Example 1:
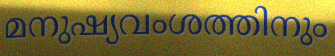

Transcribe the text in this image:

മനുഷ്യവംശത്തിനും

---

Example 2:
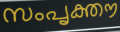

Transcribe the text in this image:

സംപൃക്തൗ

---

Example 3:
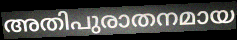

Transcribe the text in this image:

അതിപുരാതനമായ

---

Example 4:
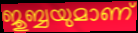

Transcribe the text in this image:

ജുബ്ബയുമാണ്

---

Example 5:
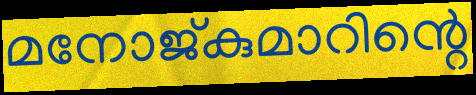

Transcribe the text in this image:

മനോജ്കുമാറിന്റെ